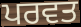
ਪਰਵਤ